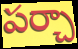
పర్చా